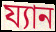
য্যান